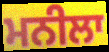
ਮਨੀਲਾ